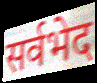
सर्वभेद